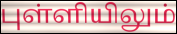
புள்ளியிலும்